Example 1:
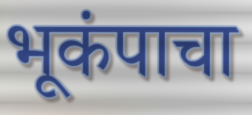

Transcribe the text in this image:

भूकंपाचा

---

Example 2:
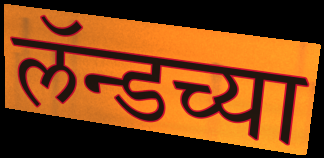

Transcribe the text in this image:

लॅन्डच्या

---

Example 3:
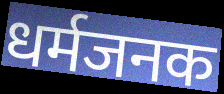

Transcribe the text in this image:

धर्मजनक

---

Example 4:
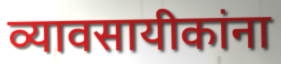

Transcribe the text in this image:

व्यावसायीकांना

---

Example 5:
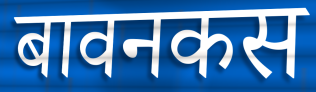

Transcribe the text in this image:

बावनकस